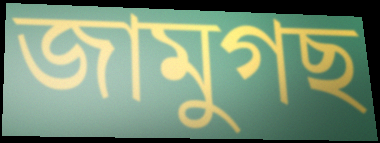
জামুগছ